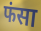
फंसा